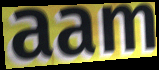
aam